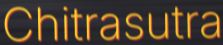
Chitrasutra